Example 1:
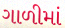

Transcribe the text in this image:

ગાળીમાં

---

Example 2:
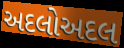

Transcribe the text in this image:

અદલોઅદલ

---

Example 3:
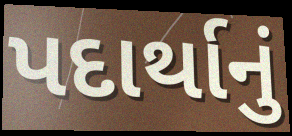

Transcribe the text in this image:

પદાર્થાનું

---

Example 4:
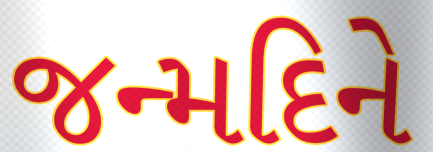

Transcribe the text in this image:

જન્મદિને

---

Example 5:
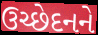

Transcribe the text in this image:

ઉચ્છેદનને